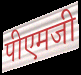
पीएमजी